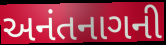
અનંતનાગની